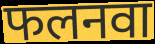
फलनवा